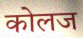
कोलज